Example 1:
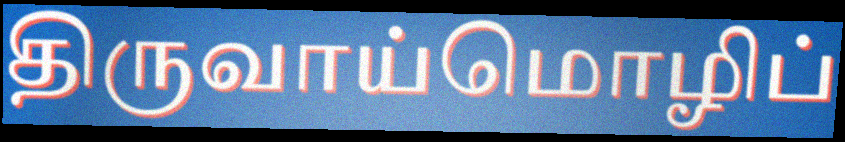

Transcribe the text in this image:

திருவாய்மொழிப்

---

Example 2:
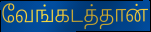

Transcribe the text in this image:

வேங்கடத்தான்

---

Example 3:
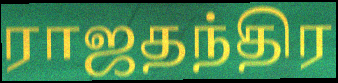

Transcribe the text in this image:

ராஜதந்திர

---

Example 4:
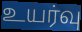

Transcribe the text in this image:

உயர்வு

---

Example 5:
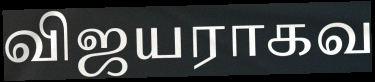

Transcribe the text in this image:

விஜயராகவ